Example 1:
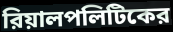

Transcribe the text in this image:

রিয়ালপলিটিকের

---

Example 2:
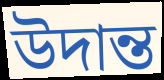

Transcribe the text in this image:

উদান্ত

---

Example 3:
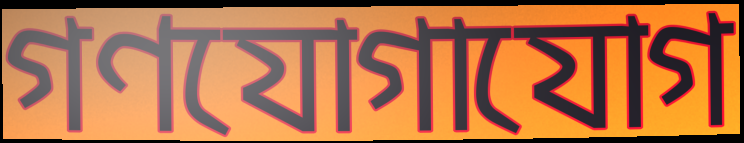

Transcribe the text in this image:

গণযোগাযোগ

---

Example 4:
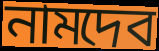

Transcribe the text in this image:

নামদেব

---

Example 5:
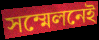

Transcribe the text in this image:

সম্মেলনেই